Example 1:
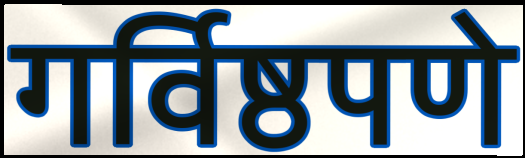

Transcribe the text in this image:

गर्विष्ठपणे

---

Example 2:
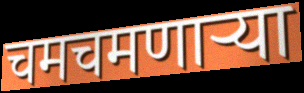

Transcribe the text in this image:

चमचमणार्‍या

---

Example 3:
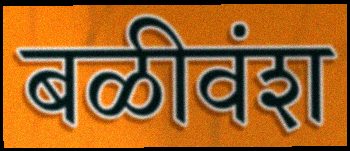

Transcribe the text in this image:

बळीवंश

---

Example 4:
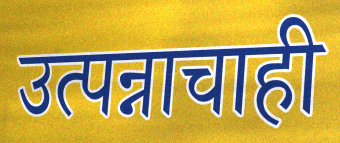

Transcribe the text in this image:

उत्पन्नाचाही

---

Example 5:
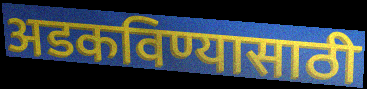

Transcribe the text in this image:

अडकविण्यासाठी